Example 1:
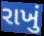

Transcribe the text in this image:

રાખું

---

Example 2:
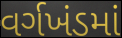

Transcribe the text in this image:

વર્ગખંડમાં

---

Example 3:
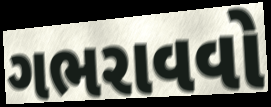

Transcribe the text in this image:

ગભરાવવો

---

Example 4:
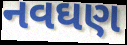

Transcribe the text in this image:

નવઘણ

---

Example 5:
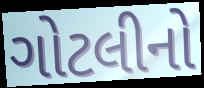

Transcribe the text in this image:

ગોટલીનો